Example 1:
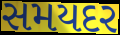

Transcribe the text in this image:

સમયદર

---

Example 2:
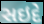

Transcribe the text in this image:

સઇદે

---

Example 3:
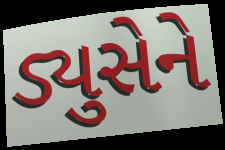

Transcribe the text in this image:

ડ્યુસેને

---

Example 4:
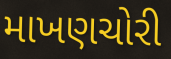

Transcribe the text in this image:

માખણચોરી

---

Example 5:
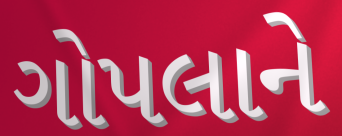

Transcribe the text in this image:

ગોપલાને